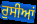
ਰੁਸੀਆਂ